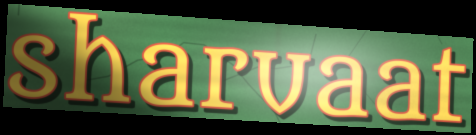
sharuaat